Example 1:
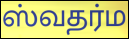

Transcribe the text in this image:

ஸ்வதர்ம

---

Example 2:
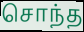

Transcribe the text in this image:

சொந்த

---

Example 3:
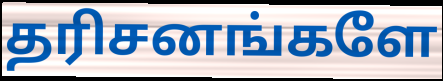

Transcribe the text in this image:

தரிசனங்களே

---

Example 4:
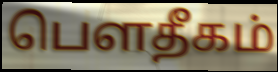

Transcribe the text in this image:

பௌதீகம்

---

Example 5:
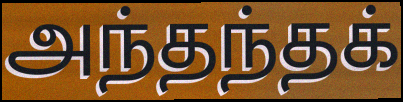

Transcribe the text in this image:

அந்தந்தக்